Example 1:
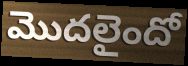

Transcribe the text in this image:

మొదలైందో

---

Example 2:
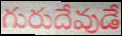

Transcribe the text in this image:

గురుదేవుడే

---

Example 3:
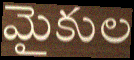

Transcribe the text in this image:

మైకుల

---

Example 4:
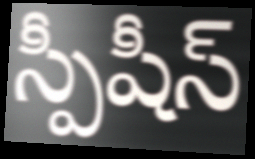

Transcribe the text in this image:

స్పీషీస్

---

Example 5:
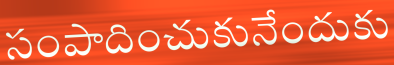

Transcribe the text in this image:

సంపాదించుకునేందుకు